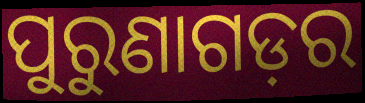
ପୁରୁଣାଗଡ଼ର